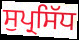
ਸੁਪ੍ਰਸਿੱਧ